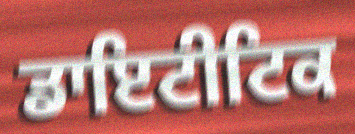
ਡਾਇਟੀਟਿਕ